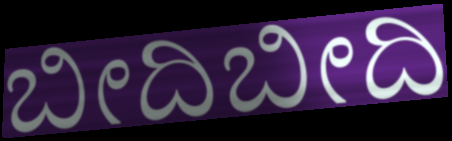
ಬೀದಿಬೀದಿ